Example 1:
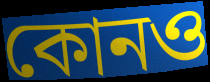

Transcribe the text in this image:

কোনও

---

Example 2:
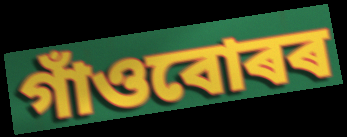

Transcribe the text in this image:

গাঁওবোৰৰ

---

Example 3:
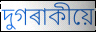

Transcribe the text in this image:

দুগৰাকীয়ে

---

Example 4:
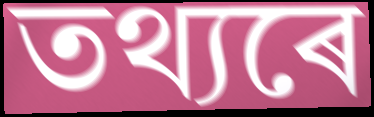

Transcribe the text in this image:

তথ্যৰে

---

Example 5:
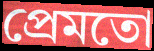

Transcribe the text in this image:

প্ৰেমতো